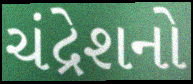
ચંદ્રેશનો